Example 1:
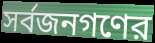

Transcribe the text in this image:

সর্বজনগণের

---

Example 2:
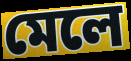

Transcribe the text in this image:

মেলে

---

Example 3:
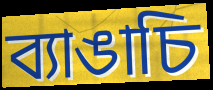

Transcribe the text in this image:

ব্যাঙাচি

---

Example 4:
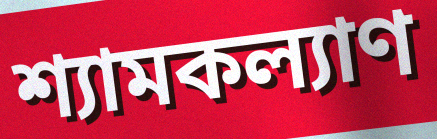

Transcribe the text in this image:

শ্যামকল্যাণ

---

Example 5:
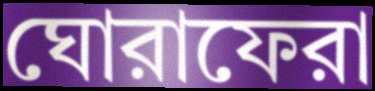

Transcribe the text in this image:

ঘোরাফেরা